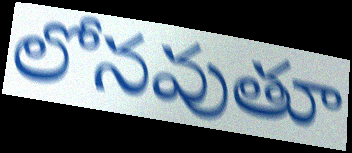
లోనవుతూ